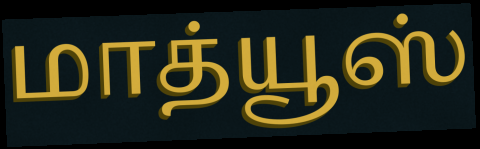
மாத்யூஸ்